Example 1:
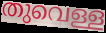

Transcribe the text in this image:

തുവെള്ള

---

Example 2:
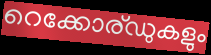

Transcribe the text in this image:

റെക്കോര്ഡുകളും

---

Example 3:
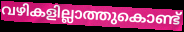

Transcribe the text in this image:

വഴികളില്ലാത്തുകൊണ്ട്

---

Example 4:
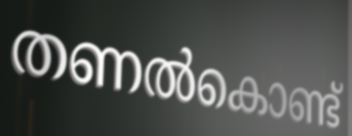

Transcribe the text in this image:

തണൽകൊണ്ട്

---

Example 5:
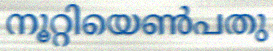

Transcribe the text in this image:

നൂറ്റിയെൺപതു